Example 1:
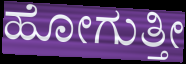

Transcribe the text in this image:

ಹೋಗುತ್ತೀ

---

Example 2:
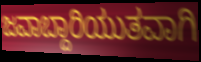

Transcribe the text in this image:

ಜವಾಬ್ದಾರಿಯುತವಾಗಿ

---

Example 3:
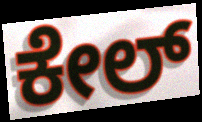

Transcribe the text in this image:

ಕೇಲ್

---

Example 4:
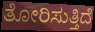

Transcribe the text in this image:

ತೋರಿಸುತ್ತಿದೆ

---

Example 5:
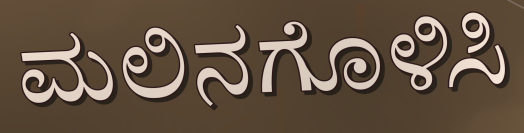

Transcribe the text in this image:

ಮಲಿನಗೊಳಿಸಿ